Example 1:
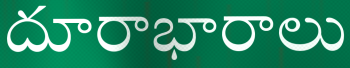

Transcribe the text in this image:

దూరాభారాలు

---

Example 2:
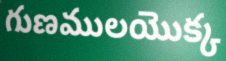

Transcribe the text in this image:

గుణములయొక్క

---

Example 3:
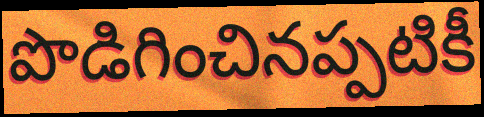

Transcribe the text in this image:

పొడిగించినప్పటికీ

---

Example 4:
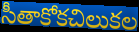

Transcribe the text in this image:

సీతాకోకచిలుకల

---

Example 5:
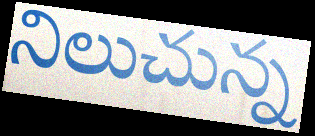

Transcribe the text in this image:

నిలుచున్న